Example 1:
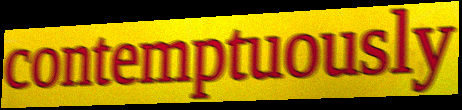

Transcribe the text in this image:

contemptuously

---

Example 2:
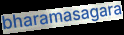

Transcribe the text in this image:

bharamasagara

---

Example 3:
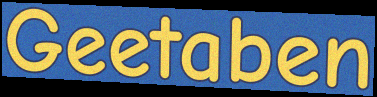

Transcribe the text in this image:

Geetaben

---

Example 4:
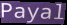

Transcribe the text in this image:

Payal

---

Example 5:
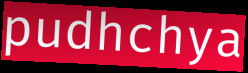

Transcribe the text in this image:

pudhchya